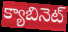
క్యాబినెట్